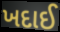
ખદાઈ